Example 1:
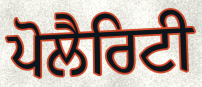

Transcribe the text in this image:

ਪੋਲੈਰਿਟੀ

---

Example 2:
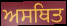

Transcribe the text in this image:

ਅਸਥਿਤ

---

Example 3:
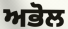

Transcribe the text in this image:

ਅਭੋਲ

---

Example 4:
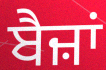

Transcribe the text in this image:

ਬੈਜ਼ਾਂ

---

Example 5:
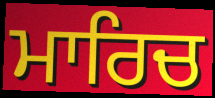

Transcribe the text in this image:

ਮਾਰਿਚ